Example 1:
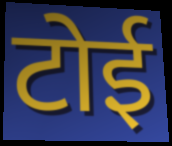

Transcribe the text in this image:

टोई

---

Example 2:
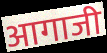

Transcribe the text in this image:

आगाजी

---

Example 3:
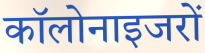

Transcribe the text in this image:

कॉलोनाइजरों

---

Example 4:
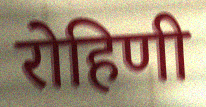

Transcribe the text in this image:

रोहिणी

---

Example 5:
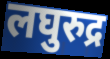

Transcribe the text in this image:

लघुरुद्र